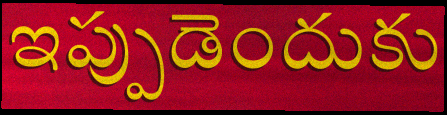
ఇప్పుడెందుకు